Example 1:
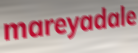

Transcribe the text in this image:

mareyadale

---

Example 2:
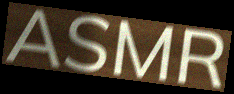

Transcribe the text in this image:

ASMR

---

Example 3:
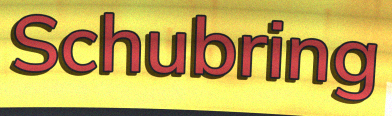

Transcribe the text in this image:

Schubring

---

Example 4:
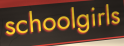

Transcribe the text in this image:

schoolgirls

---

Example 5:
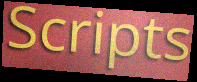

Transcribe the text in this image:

Scripts